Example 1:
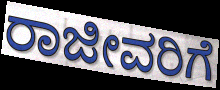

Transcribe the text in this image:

ರಾಜೀವರಿಗೆ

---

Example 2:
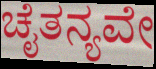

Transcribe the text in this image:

ಚೈತನ್ಯವೇ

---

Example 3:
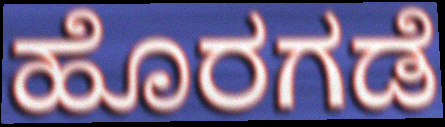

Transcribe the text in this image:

ಹೊರಗಡೆ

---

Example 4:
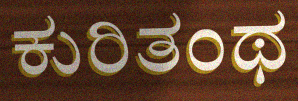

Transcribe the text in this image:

ಕುರಿತಂಥ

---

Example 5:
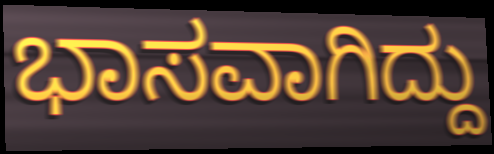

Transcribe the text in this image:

ಭಾಸವಾಗಿದ್ದು